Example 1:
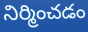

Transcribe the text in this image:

నిర్మించడం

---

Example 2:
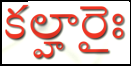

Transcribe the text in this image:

కల్హారైః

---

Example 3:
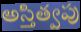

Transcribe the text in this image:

అస్తిత్వపు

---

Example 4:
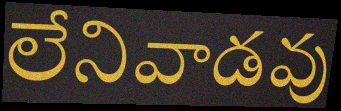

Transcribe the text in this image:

లేనివాడవు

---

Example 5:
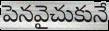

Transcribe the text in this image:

పెనవైచుకునే